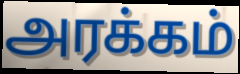
அரக்கம்